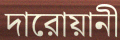
দারোয়ানী